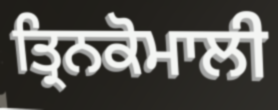
ਤ੍ਰਿਨਕੋਮਾਲੀ